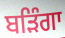
ਬੜਿੰਗਾ